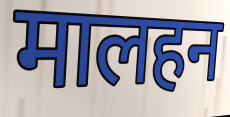
मालहन